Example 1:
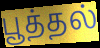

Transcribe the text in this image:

பூத்தல்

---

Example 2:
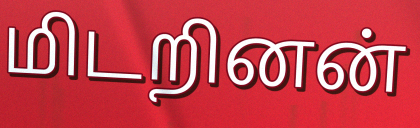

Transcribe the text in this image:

மிடறினன்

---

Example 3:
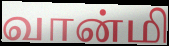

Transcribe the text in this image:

வான்மி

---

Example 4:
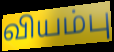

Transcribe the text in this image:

வியம்பு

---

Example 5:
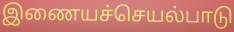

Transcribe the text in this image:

இணையச்செயல்பாடு